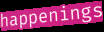
happenings